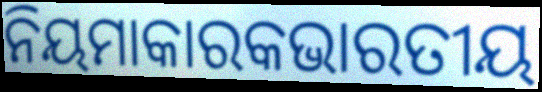
ନିୟମାକାରକଭାରତୀୟ